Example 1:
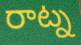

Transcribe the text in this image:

రాట్న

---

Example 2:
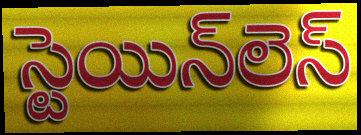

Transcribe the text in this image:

స్టెయిన్‌లెస్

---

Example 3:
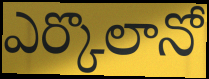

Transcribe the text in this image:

ఎర్కొలానో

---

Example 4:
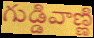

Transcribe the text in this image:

గుడ్డివాణ్ణి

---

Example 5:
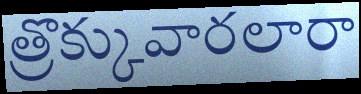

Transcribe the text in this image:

త్రొక్కువారలారా